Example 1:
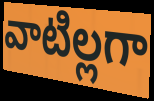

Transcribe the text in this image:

వాటిల్లగా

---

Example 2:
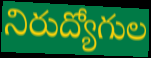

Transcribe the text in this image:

నిరుద్యోగుల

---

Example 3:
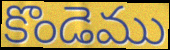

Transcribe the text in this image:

కొండెము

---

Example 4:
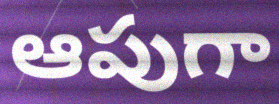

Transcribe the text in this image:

ఆపుగా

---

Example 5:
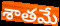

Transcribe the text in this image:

శాతమే